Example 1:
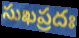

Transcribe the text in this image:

సుఖప్రదః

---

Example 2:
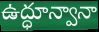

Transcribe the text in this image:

ఉద్ధూన్వానా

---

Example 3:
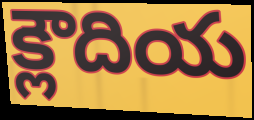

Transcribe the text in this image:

క్లౌదియ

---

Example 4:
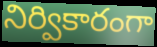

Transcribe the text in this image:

నిర్వికారంగా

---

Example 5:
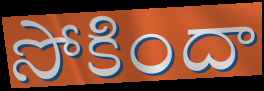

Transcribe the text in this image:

సోకిందా